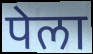
पेला